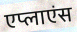
एप्लाएंस